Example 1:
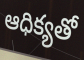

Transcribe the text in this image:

ఆధిక్యతో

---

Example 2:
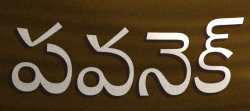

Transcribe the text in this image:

పవనెక్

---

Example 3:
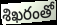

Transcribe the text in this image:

శిఖరంతో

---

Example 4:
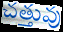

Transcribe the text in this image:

చత్తువు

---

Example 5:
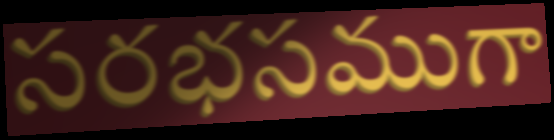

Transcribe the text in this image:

సరభసముగా